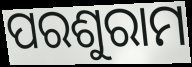
ପରଶୁରାମ